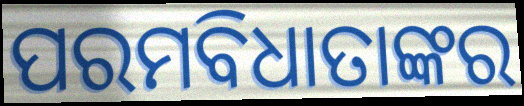
ପରମବିଧାତାଙ୍କର